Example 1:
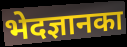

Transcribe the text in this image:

भेदज्ञानका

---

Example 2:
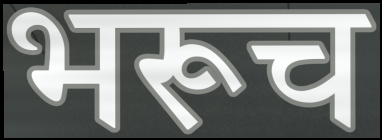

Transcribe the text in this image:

भरूच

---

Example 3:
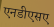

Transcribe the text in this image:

एनडीएसए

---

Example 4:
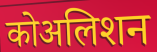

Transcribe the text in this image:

कोअलिशन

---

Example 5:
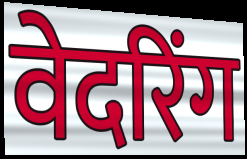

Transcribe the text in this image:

वेदरिंग